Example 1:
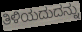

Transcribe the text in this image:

ತಿಳಿಯದುದನ್ನು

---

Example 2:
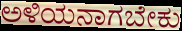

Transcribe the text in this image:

ಅಳಿಯನಾಗಬೇಕು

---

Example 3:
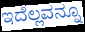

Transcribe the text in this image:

ಇದೆಲ್ಲವನ್ನೂ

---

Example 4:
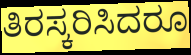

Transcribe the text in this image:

ತಿರಸ್ಕರಿಸಿದರೂ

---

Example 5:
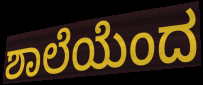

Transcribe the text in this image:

ಶಾಲೆಯೆಂದ